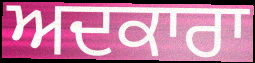
ਅਦਕਾਰਾ